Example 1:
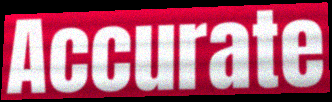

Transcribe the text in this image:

Accurate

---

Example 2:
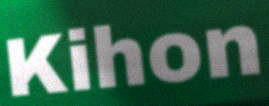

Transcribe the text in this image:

Kihon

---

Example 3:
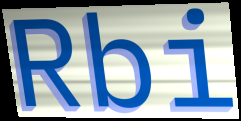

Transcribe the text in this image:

Rbi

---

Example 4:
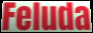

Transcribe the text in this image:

Feluda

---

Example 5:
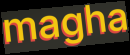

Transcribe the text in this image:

magha